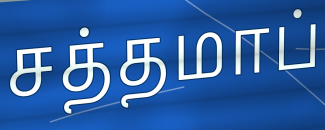
சத்தமாப்